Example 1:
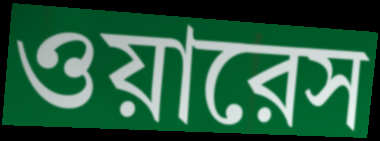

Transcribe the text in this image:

ওয়ারেস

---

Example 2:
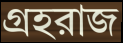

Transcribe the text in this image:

গ্রহরাজ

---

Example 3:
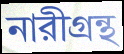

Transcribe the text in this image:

নারীগ্রন্থ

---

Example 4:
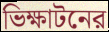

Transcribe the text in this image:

ভিক্ষাটনের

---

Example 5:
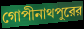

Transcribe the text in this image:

গোপীনাথপুরের